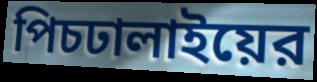
পিচঢালাইয়ের